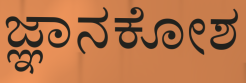
ಜ್ಞಾನಕೋಶ